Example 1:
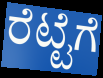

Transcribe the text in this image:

ರೆಟ್ಟೆಗೆ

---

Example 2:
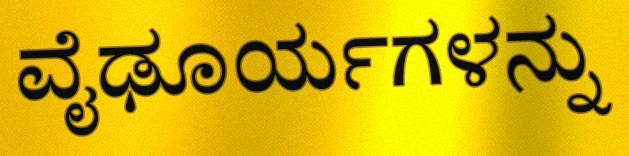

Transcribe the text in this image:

ವೈಢೂರ್ಯಗಳನ್ನು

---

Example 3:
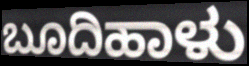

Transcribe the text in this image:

ಬೂದಿಹಾಳು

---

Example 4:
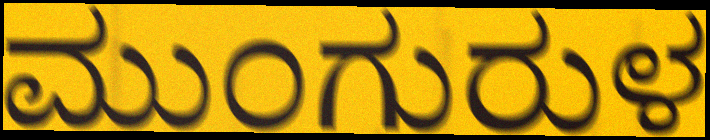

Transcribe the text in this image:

ಮುಂಗುರುಳ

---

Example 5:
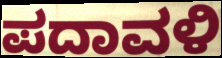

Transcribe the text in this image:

ಪದಾವಳಿ